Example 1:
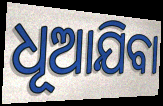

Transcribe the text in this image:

ଧୂଆଯିବା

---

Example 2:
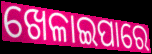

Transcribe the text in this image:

ଖେଳାଇପାରେ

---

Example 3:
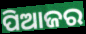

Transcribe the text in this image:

ପିଆଜର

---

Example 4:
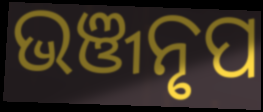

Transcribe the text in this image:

ଭଞ୍ଜନୃପ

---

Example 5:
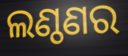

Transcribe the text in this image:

ଲଣ୍ଠଣର